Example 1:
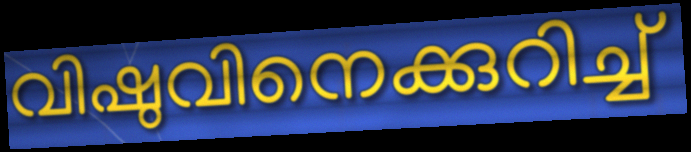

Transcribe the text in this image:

വിഷുവിനെക്കുറിച്ച്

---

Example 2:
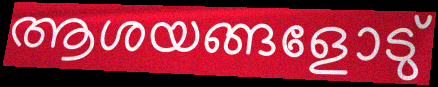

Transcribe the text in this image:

ആശയങ്ങളോടു്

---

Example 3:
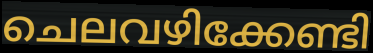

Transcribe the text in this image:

ചെലവഴിക്കേണ്ടി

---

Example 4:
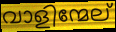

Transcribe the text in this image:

വാളിന്മേല്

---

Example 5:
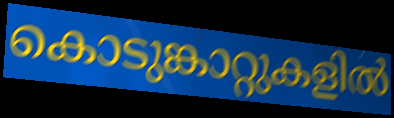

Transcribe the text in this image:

കൊടുങ്കാറ്റുകളിൽ